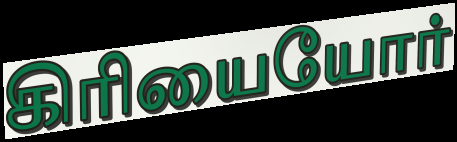
கிரியையோர்